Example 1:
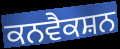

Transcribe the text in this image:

ਕਨਵੈਕਸ਼ਨ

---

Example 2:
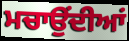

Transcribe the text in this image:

ਮਚਾਉਂਦੀਆਂ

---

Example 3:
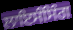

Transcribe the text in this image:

ਲਾਇਸੰਸਿੰਗ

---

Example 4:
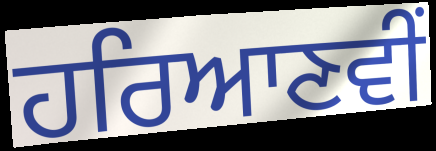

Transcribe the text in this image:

ਹਰਿਆਣਵੀਂ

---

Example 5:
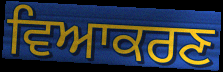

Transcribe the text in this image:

ਵਿਆਕਰਣ